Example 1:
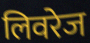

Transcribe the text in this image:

लिवरेज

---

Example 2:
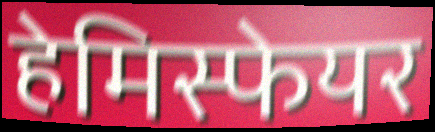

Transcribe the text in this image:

हेमिस्फेयर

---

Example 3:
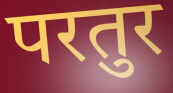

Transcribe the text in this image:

परतुर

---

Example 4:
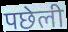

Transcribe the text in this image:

पछेली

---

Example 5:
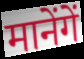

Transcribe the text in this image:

मानेंगें